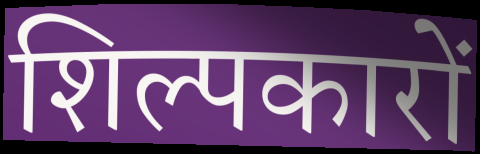
शिल्पकारों